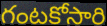
గంటకోసారి